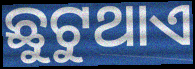
ଛୁଟୁଥାଏ